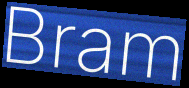
Bram